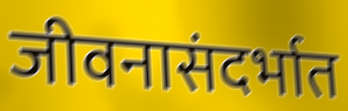
जीवनासंदर्भात